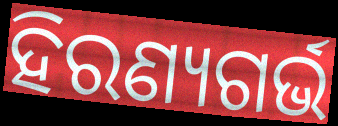
ହିରଣ୍ୟଗର୍ଭ